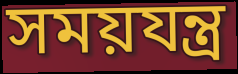
সময়যন্ত্র